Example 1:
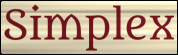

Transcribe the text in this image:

Simplex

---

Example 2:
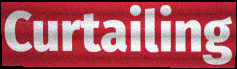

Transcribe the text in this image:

Curtailing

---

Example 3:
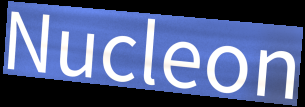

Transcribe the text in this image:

Nucleon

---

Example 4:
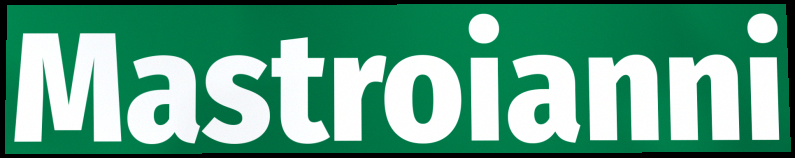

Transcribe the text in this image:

Mastroianni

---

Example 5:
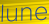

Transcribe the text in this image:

lune